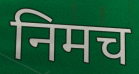
निमच